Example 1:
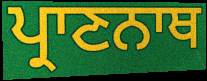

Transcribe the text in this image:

ਪ੍ਰਾਣਨਾਥ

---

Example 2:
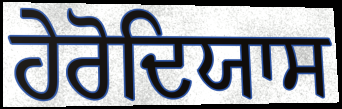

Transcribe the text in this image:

ਹੇਰੋਦਿਯਾਸ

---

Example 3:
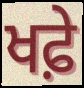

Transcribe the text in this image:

ਖਫ਼ੇ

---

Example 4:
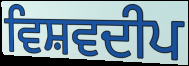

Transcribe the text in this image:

ਵਿਸ਼ਵਦੀਪ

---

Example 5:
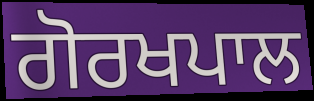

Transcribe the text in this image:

ਗੋਰਖਪਾਲ